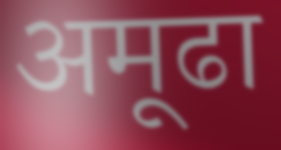
अमूढा